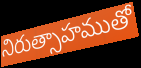
నిరుత్సాహముతో